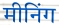
मीनिंग